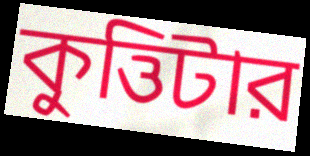
কুত্তিটার